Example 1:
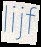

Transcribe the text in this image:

lijf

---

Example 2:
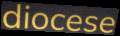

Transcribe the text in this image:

diocese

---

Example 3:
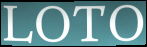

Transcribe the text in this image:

LOTO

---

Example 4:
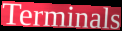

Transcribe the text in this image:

Terminals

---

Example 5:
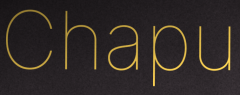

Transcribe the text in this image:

Chapu